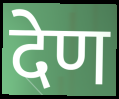
देण